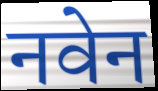
नवेन